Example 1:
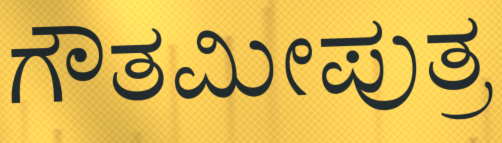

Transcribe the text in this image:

ಗೌತಮೀಪುತ್ರ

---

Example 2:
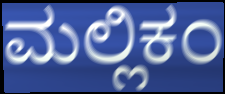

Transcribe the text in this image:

ಮಲ್ಲಿಕಂ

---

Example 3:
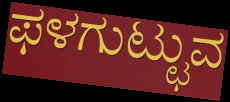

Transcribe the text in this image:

ಫಳಗುಟ್ಟುವ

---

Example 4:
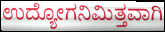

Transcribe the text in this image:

ಉದ್ಯೋಗನಿಮಿತ್ತವಾಗಿ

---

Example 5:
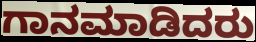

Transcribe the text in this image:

ಗಾನಮಾಡಿದರು